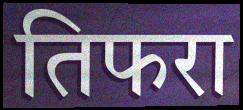
तिफरा